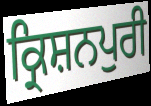
ਕ੍ਰਿਸ਼ਨਪੁਰੀ